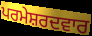
ਪਰਮੇਸ਼ਰਦਵਾਰ